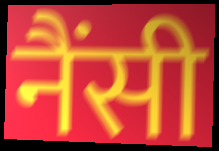
नैंसी